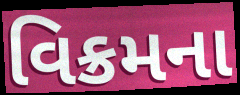
વિક્રમના